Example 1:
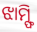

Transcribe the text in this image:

ଝାମ୍ଫି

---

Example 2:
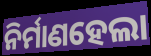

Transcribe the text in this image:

ନିର୍ମାଣହେଲା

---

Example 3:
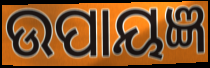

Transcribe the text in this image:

ଉପାୟଜ୍ଞ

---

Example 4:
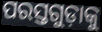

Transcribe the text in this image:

ପରସ୍ତଗୁଡ଼ାକୁ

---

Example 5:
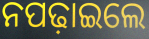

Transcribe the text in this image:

ନପଢ଼ାଇଲେ